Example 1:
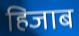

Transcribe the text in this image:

हिजाब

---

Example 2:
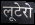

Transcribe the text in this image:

लूटेरो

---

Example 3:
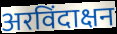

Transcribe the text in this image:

अरविंदाक्षन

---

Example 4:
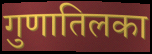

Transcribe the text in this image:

गुणातिलका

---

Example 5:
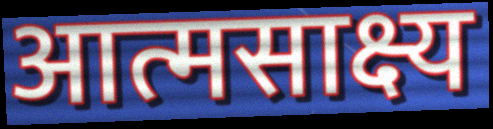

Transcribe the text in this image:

आत्मसाक्ष्य